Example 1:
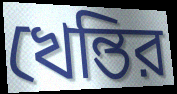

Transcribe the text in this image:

খেন্তির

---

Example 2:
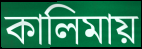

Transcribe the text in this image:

কালিমায়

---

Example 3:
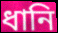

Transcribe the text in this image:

ধানি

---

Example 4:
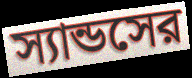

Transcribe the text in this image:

স্যান্ডসের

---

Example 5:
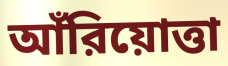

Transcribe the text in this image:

আঁরিয়োত্তা